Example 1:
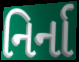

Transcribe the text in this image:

નિર્ના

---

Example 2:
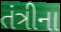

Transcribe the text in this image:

તંત્રીના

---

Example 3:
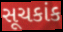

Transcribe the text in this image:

સૂચકાંક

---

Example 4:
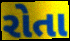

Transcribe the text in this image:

રોતા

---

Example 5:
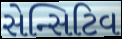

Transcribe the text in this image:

સેન્સિટિવ